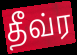
தீவ்ர